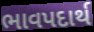
ભાવપદાર્થ